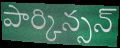
పార్కిన్సన్